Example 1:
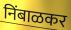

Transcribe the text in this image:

निंबाळकर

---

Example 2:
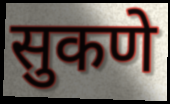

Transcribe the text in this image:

सुकणे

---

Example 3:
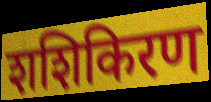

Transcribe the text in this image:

शशिकिरण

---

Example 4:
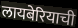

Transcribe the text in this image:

लायबेरियाची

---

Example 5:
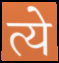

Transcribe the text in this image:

त्ये